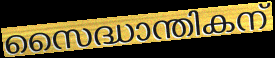
സൈദ്ധാന്തികന്